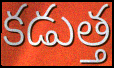
కడుత్త